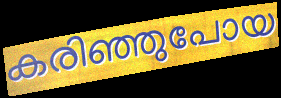
കരിഞ്ഞുപോയ